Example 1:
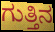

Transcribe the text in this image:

ಗುತ್ತಿನ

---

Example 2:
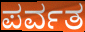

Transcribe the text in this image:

ಪರ್ವತ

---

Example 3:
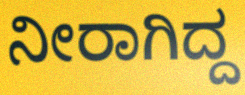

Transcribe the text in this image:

ನೀರಾಗಿದ್ದ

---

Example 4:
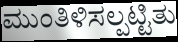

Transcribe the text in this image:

ಮುಂತಿಳಿಸಲ್ಪಟ್ಟಿತು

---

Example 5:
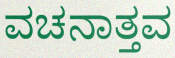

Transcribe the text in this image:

ವಚನಾತ್ತವ